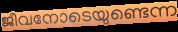
ജീവനോടെയുണ്ടെന്ന